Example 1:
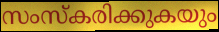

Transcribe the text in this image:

സംസ്കരിക്കുകയും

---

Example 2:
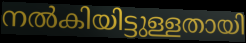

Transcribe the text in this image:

നൽകിയിട്ടുള്ളതായി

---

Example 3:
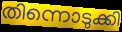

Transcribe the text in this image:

തിന്നൊടുക്കി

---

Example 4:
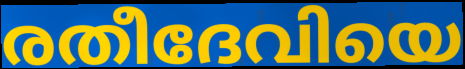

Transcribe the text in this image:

രതീദേവിയെ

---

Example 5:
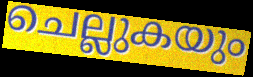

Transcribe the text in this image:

ചെല്ലുകയും